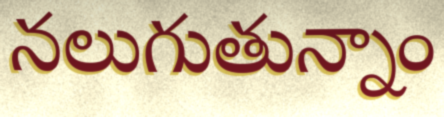
నలుగుతున్నాం